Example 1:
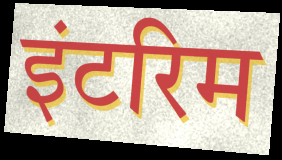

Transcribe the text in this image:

इंटरिम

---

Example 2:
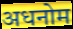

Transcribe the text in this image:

अधनोम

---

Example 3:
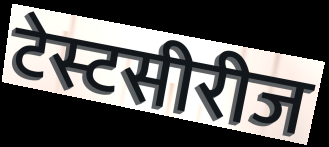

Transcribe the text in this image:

टेस्टसीरीज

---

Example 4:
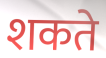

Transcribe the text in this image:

शकते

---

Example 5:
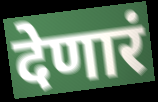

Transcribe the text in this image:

देणारं